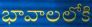
భావాలలోకి